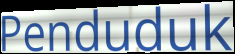
Penduduk